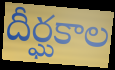
దీర్ఘకాల